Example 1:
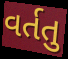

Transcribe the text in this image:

વર્તતુ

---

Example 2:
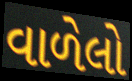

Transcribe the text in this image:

વાળેલો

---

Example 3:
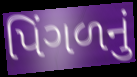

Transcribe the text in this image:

પિંગળનું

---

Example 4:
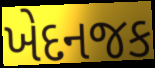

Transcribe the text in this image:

ખેદનજક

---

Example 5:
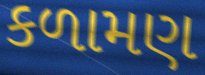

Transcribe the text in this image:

કળામણ